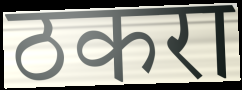
ठकरा